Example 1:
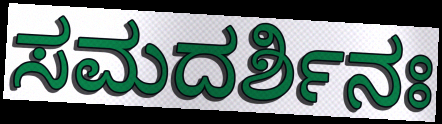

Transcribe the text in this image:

ಸಮದರ್ಶಿನಃ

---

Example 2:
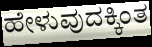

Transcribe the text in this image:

ಹೇಳುವುದಕ್ಕಿಂತ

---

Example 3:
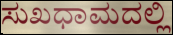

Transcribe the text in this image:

ಸುಖಧಾಮದಲ್ಲಿ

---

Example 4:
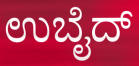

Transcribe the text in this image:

ಉಬೈದ್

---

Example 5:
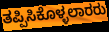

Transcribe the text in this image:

ತಪ್ಪಿಸಿಕೊಳ್ಳಲಾರರು